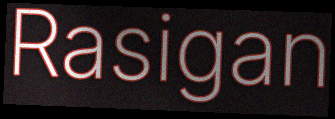
Rasigan